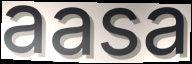
aasa